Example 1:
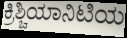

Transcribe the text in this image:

ಕ್ರಿಶ್ಚಿಯಾನಿಟಿಯ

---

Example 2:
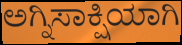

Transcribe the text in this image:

ಅಗ್ನಿಸಾಕ್ಷಿಯಾಗಿ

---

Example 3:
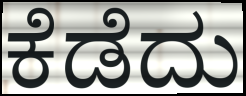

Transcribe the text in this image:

ಕೆಡೆದು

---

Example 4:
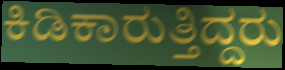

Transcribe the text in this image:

ಕಿಡಿಕಾರುತ್ತಿದ್ದರು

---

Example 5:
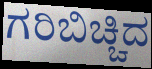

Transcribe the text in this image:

ಗರಿಬಿಚ್ಚಿದ